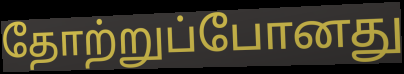
தோற்றுப்போனது